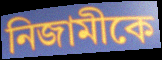
নিজামীকে